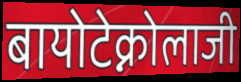
बायोटेक्नोलाजी